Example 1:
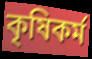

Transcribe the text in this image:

কৃষিকর্ম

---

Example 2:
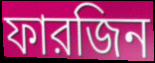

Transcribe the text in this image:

ফারজিন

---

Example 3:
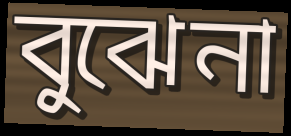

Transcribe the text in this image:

বুঝেনা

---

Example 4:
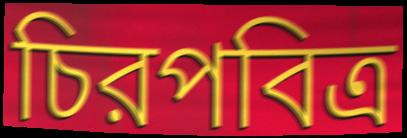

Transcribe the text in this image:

চিরপবিত্র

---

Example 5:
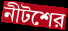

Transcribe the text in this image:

নীটশের